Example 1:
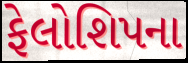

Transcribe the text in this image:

ફેલોશિપના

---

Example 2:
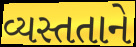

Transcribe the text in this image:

વ્યસ્તતાને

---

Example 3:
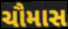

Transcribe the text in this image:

ચૌમાસ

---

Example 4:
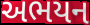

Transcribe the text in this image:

અભયન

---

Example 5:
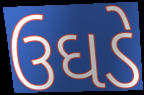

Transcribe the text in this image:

ઉઘડે